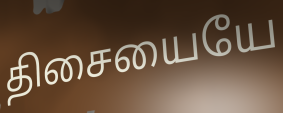
திசையையே